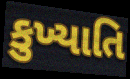
કુખ્યાતિ